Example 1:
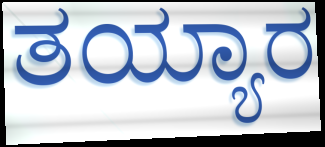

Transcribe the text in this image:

ತಯ್ಯಾರ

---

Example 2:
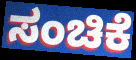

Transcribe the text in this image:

ಸಂಚಿಕೆ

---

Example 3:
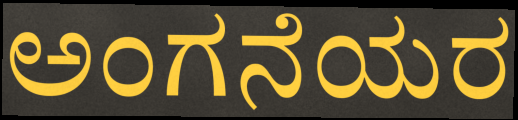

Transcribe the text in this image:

ಅಂಗನೆಯರ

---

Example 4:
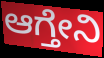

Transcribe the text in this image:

ಆಗ್ತೇನಿ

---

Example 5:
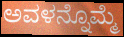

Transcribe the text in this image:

ಅವಳನ್ನೊಮ್ಮೆ